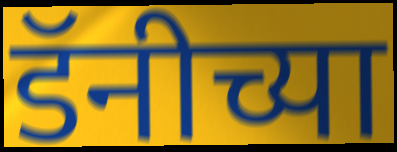
डॅनीच्या